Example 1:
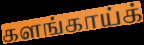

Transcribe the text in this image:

களங்காய்க்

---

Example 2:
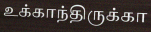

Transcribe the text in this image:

உக்காந்திருக்கா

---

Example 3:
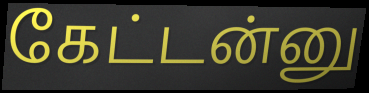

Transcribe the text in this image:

கேட்டன்னு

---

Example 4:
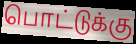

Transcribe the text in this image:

பொட்டுக்கு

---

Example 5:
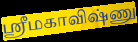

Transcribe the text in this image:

ஸ்ரீமகாவிஷ்ணு